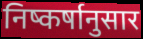
निष्कर्षानुसार